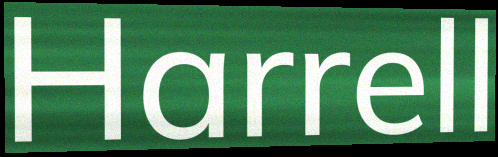
Harrell